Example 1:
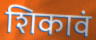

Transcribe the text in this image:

शिकावं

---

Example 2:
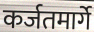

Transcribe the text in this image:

कर्जतमार्गे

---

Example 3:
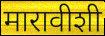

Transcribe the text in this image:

मारावीशी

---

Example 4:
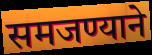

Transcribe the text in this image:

समजण्याने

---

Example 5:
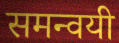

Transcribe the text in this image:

समन्वयी